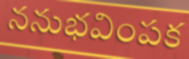
ననుభవింపక